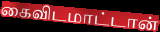
கைவிடமாட்டான்